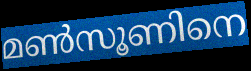
മൺസൂണിനെ